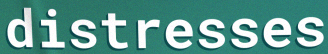
distresses